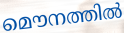
മൌനത്തിൽ